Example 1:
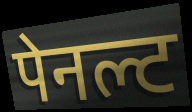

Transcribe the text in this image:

पेनल्ट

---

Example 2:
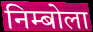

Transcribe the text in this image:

निम्बोला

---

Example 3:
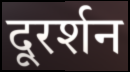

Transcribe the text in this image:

दूरर्शन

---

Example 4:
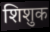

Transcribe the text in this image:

शिशुक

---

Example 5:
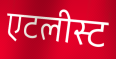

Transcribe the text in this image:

एटलीस्ट